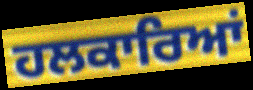
ਹਲਕਾਰਿਆਂ